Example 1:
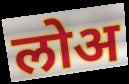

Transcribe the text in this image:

लोअ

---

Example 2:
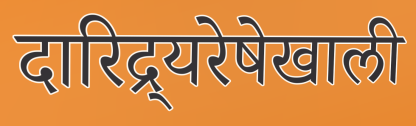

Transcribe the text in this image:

दारिद्र्यरेषेखाली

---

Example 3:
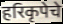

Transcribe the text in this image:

हरिकृपेचे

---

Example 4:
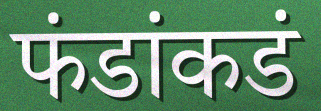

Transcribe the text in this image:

फंडांकडं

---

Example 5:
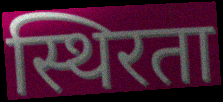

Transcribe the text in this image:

स्थिरता